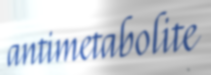
antimetabolite